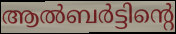
ആൽബർട്ടിന്റെ